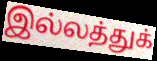
இல்லத்துக்